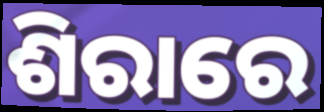
ଶିରାରେ